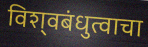
विश्वबंधुत्वाचा